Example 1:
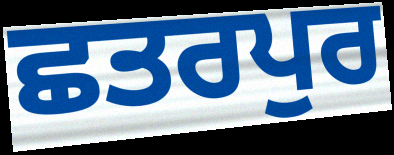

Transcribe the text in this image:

ਛਤਰਪੁਰ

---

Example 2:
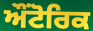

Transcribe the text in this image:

ਔਂਟੋਰਿਕ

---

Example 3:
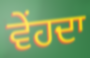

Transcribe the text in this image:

ਵੇਂਹਦਾ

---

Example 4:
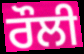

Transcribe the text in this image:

ਰੌਲੀ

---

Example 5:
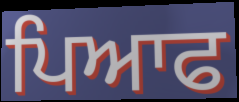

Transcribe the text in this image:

ਪਿਆਫ